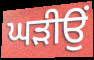
ਘੜੀਉਂ